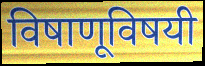
विषाणूविषयी